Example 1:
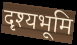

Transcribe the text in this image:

दृश्यभूमि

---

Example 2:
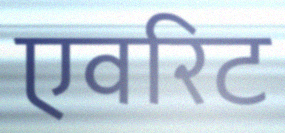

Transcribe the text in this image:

एवरिट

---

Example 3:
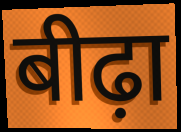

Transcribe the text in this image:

बीढ़ा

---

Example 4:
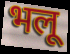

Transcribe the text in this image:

भलू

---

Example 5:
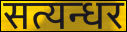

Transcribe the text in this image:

सत्यन्धर